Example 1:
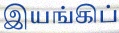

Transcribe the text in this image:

இயங்கிப்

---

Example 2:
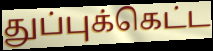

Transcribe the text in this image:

துப்புக்கெட்ட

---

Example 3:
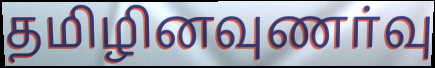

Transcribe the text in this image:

தமிழினவுணர்வு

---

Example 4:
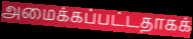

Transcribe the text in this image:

அமைக்கப்பட்டதாகக்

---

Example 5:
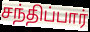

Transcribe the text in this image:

சந்திப்பார்